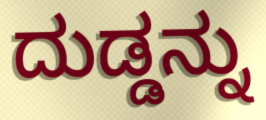
ದುಡ್ಡನ್ನು